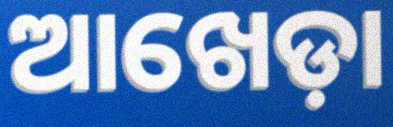
ଆଖେଡ଼ା